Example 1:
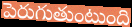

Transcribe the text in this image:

పెరుగుతుంటుంది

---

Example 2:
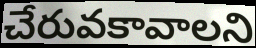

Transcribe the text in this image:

చేరువకావాలని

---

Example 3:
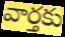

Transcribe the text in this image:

వార్తకు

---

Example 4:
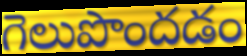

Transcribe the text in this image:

గెలుపొందడం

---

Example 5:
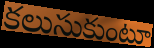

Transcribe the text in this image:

కలుసుకుంటూ